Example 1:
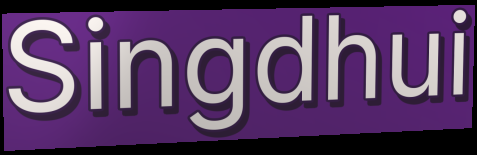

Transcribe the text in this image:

Singdhui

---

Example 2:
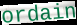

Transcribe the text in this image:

ordain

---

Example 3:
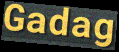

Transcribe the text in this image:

Gadag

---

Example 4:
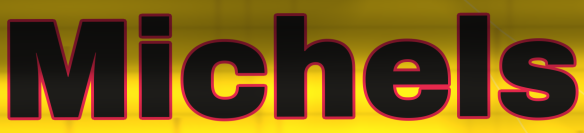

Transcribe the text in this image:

Michels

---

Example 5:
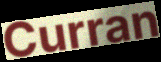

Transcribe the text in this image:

Curran